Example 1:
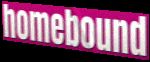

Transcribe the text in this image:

homebound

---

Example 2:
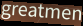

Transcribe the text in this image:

greatmen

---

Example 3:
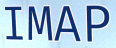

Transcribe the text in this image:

IMAP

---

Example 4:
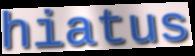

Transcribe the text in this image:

hiatus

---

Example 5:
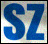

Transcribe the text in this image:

sz